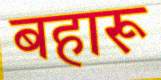
बहारू